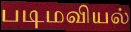
படிமவியல்